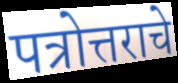
पत्रोत्तराचे